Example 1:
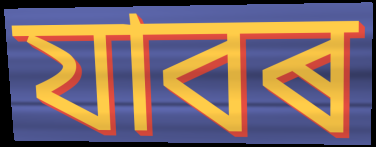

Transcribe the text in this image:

যাবৰ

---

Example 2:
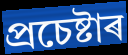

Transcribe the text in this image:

প্ৰচেষ্টাৰ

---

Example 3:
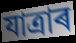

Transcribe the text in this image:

যাত্ৰাৰ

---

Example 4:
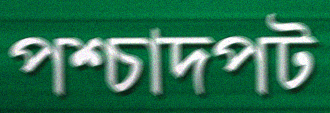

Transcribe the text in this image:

পশ্চাদপট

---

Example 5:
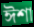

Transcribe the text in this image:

ঈশা